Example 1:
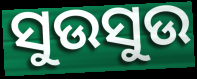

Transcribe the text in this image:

ସୁଉସୁଉ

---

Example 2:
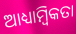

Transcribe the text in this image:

ଆଧ୍ୟାମ୍ବିକତା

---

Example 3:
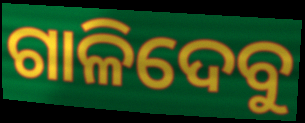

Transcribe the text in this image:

ଗାଳିଦେବୁ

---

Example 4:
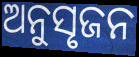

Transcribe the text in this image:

ଅନୁସୃଜନ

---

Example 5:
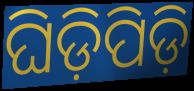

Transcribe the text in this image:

ଘିଡ଼ିପିଡ଼ି